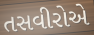
તસવીરોએ